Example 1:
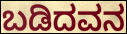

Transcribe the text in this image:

ಬಡಿದವನ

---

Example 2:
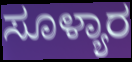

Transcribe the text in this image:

ಸೂಳ್ಯಾರ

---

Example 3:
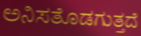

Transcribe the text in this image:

ಅನಿಸತೊಡಗುತ್ತದೆ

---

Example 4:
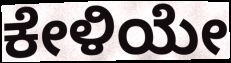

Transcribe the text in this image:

ಕೇಳಿಯೇ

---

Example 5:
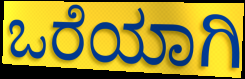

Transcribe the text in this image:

ಒರೆಯಾಗಿ